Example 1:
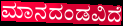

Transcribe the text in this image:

ಮಾನದಂಡವಿದೆ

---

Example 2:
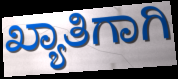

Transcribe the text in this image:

ಖ್ಯಾತಿಗಾಗಿ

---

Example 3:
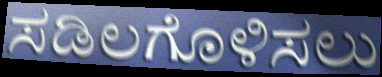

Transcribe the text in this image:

ಸಡಿಲಗೊಳಿಸಲು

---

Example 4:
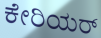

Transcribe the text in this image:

ಕೇರಿಯರ್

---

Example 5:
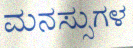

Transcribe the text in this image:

ಮನಸ್ಸುಗಳ